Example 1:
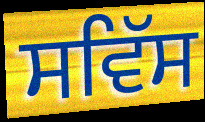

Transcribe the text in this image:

ਸਵਿੱਸ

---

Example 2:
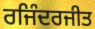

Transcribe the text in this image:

ਰਜਿੰਦਰਜੀਤ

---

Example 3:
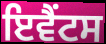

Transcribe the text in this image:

ਇਵੈਂਟਸ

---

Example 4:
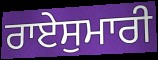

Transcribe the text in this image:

ਰਾਏਸੁਮਾਰੀ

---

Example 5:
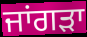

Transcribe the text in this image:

ਜਾਂਗੜਾ